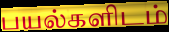
பயல்களிடம்